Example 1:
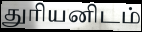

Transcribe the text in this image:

துரியனிடம்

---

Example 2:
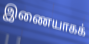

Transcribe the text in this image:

இணையாகக்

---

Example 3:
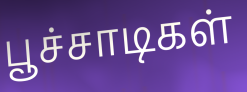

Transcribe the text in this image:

பூச்சாடிகள்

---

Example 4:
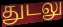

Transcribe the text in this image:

துடலு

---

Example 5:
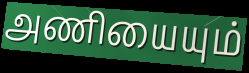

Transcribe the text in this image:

அணியையும்